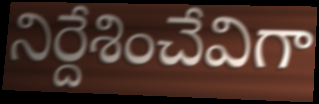
నిర్దేశించేవిగా